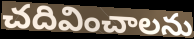
చదివించాలను